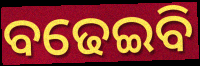
ବଢେଇବି